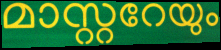
മാസ്റ്ററേയും